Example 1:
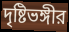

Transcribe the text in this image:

দৃষ্টিভঙ্গীর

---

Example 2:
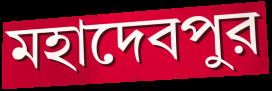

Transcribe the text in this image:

মহাদেবপুর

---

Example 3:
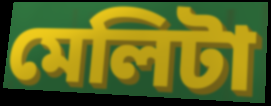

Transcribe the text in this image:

মেলিটা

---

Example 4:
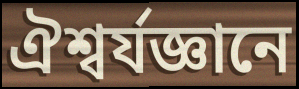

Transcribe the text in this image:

ঐশ্বর্যজ্ঞানে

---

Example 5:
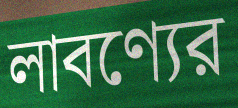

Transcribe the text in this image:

লাবণ্যের